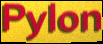
Pylon